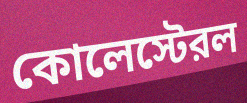
কোলেস্টেরল